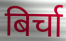
बिर्चा